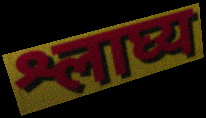
श्लाघ्य